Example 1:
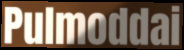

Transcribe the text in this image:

Pulmoddai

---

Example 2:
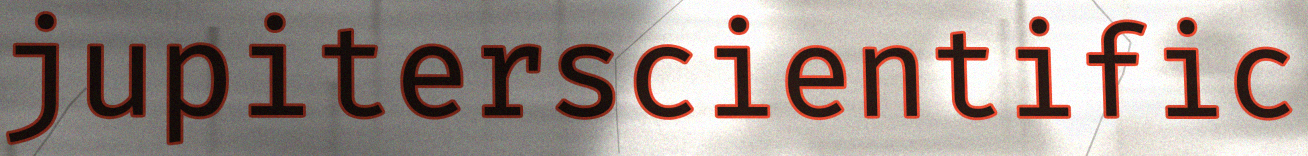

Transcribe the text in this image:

jupiterscientific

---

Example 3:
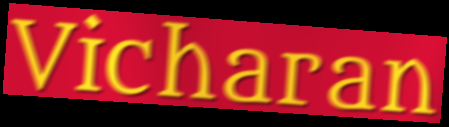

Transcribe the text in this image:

Vicharan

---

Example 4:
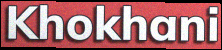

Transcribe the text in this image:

Khokhani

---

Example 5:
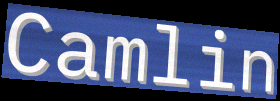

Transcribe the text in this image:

Camlin